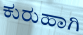
ಕುರುಹಾಗಿ